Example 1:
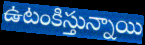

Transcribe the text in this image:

ఉటంకిస్తున్నాయి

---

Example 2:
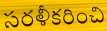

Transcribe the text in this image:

సరళీకరించి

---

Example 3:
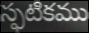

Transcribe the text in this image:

స్ఫటికము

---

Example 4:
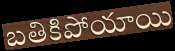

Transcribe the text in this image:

బతికిపోయాయి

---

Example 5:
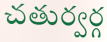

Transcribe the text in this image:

చతుర్వర్గ